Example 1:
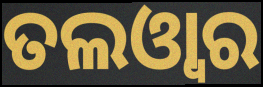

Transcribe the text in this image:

ତଲଓ୍ୱାର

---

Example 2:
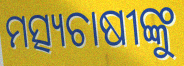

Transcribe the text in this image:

ମତ୍ସ୍ୟଚାଷୀଙ୍କୁ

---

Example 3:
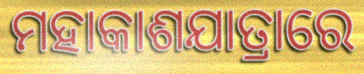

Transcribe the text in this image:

ମହାକାଶଯାତ୍ରାରେ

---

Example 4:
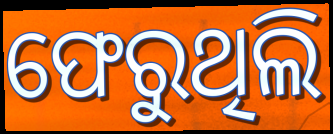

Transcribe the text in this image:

ଫେରୁଥିଲି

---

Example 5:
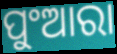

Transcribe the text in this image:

ପୁଂଆରା